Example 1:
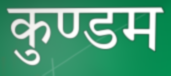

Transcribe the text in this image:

कुण्डम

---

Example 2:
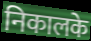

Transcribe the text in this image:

निकालके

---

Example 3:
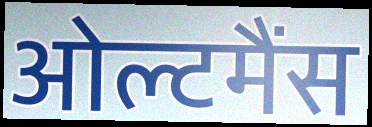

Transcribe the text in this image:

ओल्टमैंस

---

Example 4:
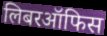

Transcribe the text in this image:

लिबरऑफिस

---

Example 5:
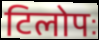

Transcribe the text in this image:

टिलोपः